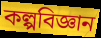
কল্পবিজ্ঞান